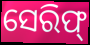
ସେରିଫ୍